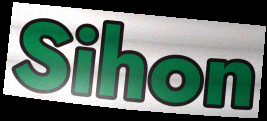
Sihon